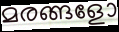
മരങ്ങളോ